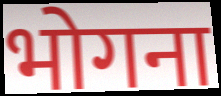
भोगना